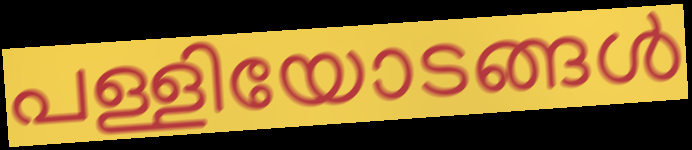
പള്ളിയോടങ്ങൾ